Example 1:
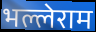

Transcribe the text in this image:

भल्लेराम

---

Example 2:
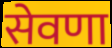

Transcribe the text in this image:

सेवणा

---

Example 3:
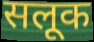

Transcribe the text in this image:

सलूक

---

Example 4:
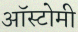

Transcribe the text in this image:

ऑस्टोमी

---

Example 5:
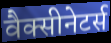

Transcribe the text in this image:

वैक्सीनेटर्स